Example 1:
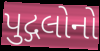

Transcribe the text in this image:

પુદ્ગલોનો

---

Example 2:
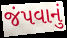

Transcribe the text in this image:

જંપવાનું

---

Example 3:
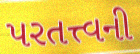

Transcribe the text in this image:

પરતત્ત્વની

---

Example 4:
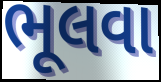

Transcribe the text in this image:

ભૂલવા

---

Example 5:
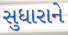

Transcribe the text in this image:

સુધારાને